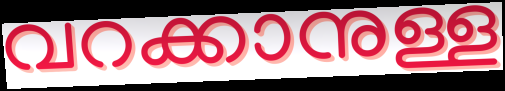
വറക്കാനുള്ള